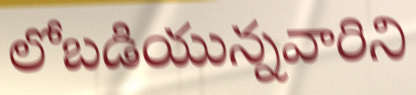
లోబడియున్నవారిని